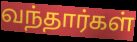
வந்தார்கள்